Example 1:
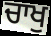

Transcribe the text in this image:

ਚਾਖੁ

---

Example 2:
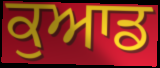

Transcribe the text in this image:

ਕੁਆਡ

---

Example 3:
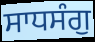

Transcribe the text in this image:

ਸਾਧਸੰਗੁ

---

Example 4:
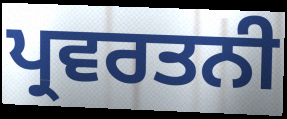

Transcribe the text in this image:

ਪ੍ਰਵਰਤਨੀ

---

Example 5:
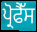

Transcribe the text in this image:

ਪ੍ਰੋਫੈੱਸ